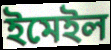
ইমেইল